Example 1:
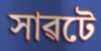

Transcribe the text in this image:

সাৱটে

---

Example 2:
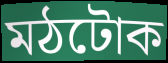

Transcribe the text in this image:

মঠটোক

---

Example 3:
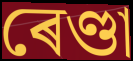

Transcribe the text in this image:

ৰেণ্ডা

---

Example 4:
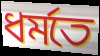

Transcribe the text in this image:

ধৰ্মতে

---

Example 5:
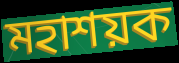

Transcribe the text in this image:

মহাশয়ক